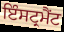
ਇੰਸਟ੍ਰਮੈਂਟ